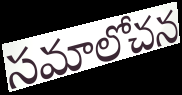
సమాలోచన